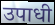
उपाधी